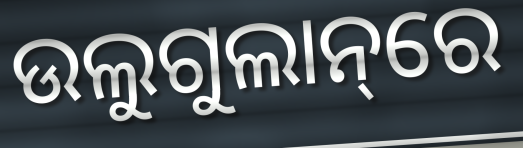
ଉଲୁଗୁଲାନ୍‌ରେ